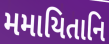
મમાયિતાનિ